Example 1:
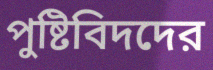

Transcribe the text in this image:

পুষ্টিবিদদের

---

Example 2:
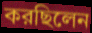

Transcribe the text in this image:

করছিলেন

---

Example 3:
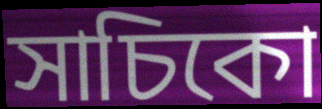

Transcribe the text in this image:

সাচিকো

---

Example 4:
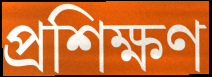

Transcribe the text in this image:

প্রশিক্ষণ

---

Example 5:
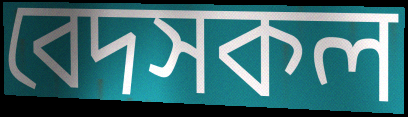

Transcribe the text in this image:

বেদসকল